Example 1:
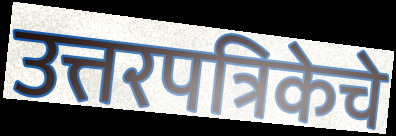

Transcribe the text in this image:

उत्तरपत्रिकेचे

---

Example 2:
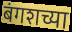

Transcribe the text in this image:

बंगशच्या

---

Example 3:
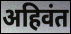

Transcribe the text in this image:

अहिवंत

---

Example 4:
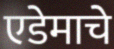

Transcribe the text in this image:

एडेमाचे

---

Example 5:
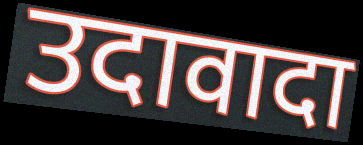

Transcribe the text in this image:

उदावादा